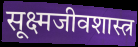
सूक्ष्मजीवशास्त्र